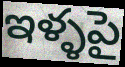
ఇళ్ళపై